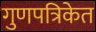
गुणपत्रिकेत